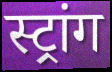
स्ट्रांग